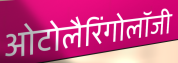
ओटोलैरिंगोलॉजी